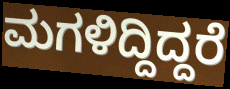
ಮಗಳಿದ್ದಿದ್ದರೆ